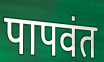
पापवंत